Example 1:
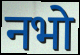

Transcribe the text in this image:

नभो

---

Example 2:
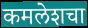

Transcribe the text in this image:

कमलेशचा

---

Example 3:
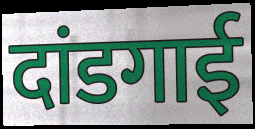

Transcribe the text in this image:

दांडगाई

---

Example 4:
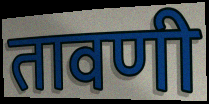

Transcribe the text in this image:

तावणी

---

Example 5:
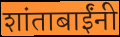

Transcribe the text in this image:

शांताबाईंनी